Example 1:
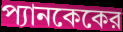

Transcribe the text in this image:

প্যানকেকের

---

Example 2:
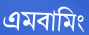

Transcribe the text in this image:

এমবামিং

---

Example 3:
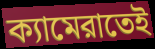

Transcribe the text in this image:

ক্যামেরাতেই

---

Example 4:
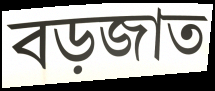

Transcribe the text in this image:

বড়জাত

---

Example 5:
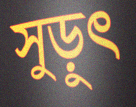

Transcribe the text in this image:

সুড়ুৎ